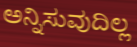
ಅನ್ನಿಸುವುದಿಲ್ಲ